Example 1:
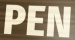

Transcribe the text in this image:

PEN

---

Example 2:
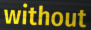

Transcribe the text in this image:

without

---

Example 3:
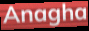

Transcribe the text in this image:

Anagha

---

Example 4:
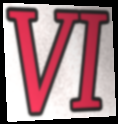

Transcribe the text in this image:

VI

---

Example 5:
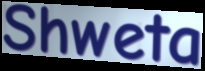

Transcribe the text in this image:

Shweta